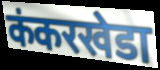
कंकरखेडा